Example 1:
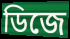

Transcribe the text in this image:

ডিজে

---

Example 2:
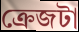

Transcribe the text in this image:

ক্রেজটা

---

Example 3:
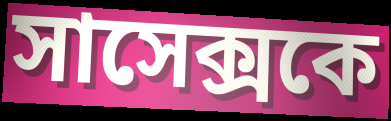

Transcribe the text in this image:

সাসেক্সকে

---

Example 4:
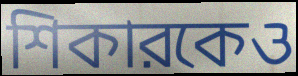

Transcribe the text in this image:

শিকারকেও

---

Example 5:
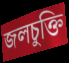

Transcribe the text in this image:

জলচুক্তি